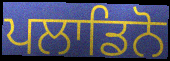
ਪਲਾਡਿਨੋ